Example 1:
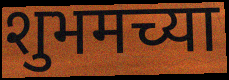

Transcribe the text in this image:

शुभमच्या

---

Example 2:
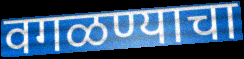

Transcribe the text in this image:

वगळण्याचा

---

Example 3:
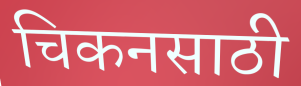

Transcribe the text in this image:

चिकनसाठी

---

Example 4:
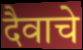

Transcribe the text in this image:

दैवाचे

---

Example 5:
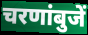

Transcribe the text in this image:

चरणांबुजें